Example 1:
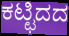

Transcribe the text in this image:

ಕಟ್ಟಿದದ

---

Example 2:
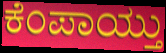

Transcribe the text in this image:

ಕೆಂಪಾಯ್ತು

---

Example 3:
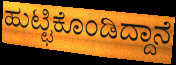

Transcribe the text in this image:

ಹುಟ್ಟಿಕೊಂಡಿದ್ದಾನೆ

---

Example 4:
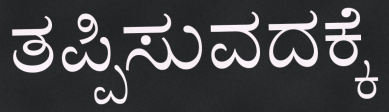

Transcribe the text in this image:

ತಪ್ಪಿಸುವದಕ್ಕೆ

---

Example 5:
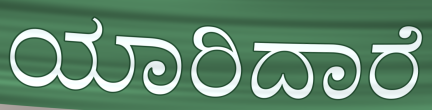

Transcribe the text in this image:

ಯಾರಿದಾರೆ